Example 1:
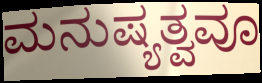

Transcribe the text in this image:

ಮನುಷ್ಯತ್ವವೂ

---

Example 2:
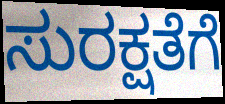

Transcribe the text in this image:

ಸುರಕ್ಷತೆಗೆ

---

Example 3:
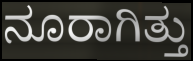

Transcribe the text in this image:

ನೂರಾಗಿತ್ತು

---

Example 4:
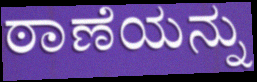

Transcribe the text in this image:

ಠಾಣೆಯನ್ನು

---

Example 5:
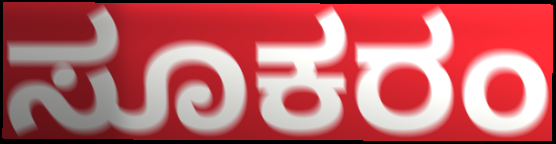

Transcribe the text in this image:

ಸೂಕರಂ